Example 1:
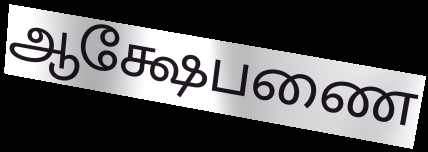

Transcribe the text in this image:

ஆக்ஷேபணை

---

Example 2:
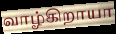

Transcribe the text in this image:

வாழ்கிறாயா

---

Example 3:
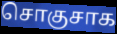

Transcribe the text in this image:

சொகுசாக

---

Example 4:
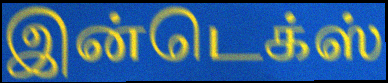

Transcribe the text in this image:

இன்டெக்ஸ்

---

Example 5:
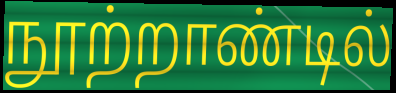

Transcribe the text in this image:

நூற்றாண்டில்